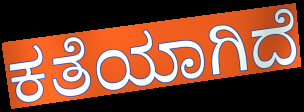
ಕತೆಯಾಗಿದೆ